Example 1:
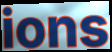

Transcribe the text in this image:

ions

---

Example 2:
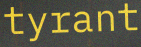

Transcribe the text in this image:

tyrant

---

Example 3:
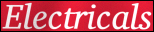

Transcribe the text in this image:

Electricals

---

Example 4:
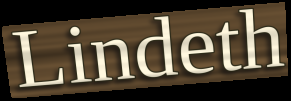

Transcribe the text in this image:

Lindeth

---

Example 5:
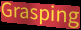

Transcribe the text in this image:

Grasping